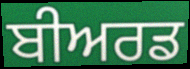
ਬੀਅਰਡ